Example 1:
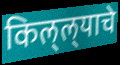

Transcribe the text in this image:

किल्ल्याचे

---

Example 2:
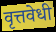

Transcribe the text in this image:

वृत्तवेधी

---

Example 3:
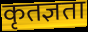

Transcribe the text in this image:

कृतज्ञता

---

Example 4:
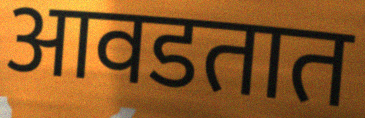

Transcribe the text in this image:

आवडतात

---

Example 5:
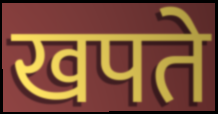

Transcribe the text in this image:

खपते